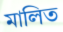
মালিত